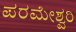
ಪರಮೇಶ್ವರಿ